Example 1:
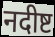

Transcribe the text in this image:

नदीष्ट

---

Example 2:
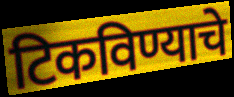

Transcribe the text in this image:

टिकविण्याचे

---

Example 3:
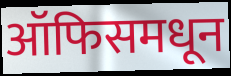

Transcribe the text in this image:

ऑफिसमधून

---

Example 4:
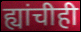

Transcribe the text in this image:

ह्यांचीही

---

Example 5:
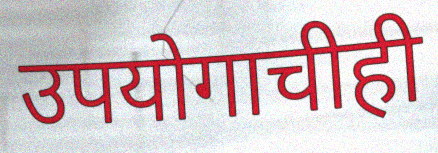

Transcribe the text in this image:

उपयोगाचीही